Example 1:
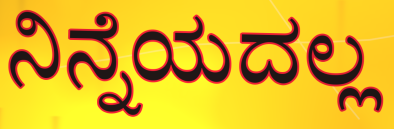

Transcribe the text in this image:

ನಿನ್ನೆಯದಲ್ಲ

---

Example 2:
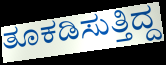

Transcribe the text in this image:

ತೂಕಡಿಸುತ್ತಿದ್ದ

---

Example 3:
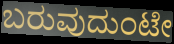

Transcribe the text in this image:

ಬರುವುದುಂಟೇ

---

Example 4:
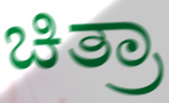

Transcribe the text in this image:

ಚಿತ್ರಾ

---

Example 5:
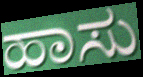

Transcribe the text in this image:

ಹಾಸು